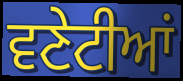
ਵਣੇਟੀਆਂ